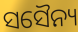
ସସୈନ୍ୟ